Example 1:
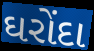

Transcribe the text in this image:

ઘરોંદા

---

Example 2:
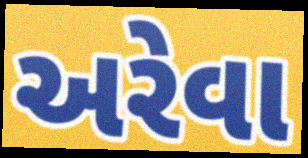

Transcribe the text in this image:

અરેવા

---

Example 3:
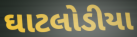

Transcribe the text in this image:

ઘાટલોડીયા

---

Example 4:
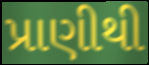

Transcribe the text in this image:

પ્રાણીથી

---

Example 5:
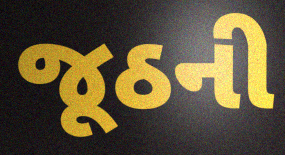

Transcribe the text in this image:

જૂઠની